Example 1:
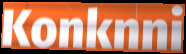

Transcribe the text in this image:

Konknni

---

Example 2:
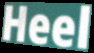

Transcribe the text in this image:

Heel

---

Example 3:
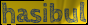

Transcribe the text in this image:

hasibul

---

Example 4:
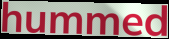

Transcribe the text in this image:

hummed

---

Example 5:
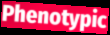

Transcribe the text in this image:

Phenotypic